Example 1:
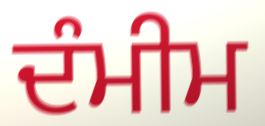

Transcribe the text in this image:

ਦੰਮੀਮ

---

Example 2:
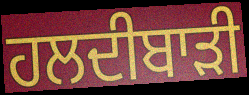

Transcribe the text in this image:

ਹਲਦੀਬਾੜੀ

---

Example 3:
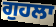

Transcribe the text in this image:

ਗੁਹਲਾ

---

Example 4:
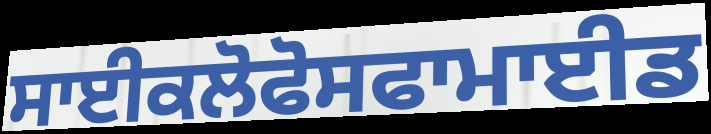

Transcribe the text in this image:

ਸਾਈਕਲੋਫੋਸਫਾਮਾਈਡ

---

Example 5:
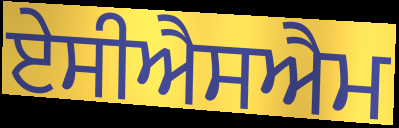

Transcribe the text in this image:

ਏਸੀਐਸਐਮ